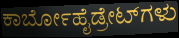
ಕಾರ್ಬೋಹೈಡ್ರೇಟ್‌ಗಳು